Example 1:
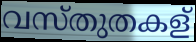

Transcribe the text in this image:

വസ്തുതകള്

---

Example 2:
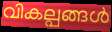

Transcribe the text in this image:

വികല്പങ്ങൾ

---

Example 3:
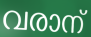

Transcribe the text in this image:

വരാന്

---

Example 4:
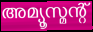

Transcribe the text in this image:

അമ്യൂസ്മന്റ്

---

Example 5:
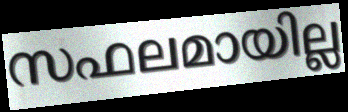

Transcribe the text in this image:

സഫലമായില്ല